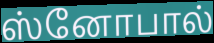
ஸ்னோபால்